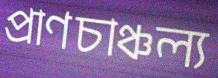
প্রাণচাঞ্চল্য